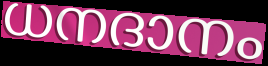
ധനദാനം